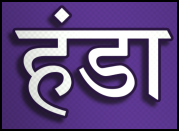
हंडा